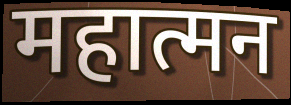
महात्मन